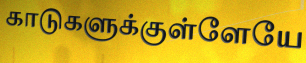
காடுகளுக்குள்ளேயே